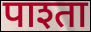
पाश्ता